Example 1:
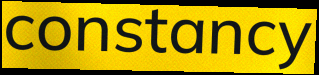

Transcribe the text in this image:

constancy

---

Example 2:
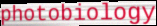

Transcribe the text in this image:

photobiology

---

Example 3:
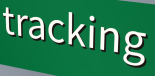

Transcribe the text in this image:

tracking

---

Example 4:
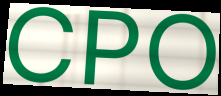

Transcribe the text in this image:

CPO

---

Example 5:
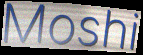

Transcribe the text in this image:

Moshi